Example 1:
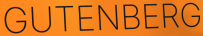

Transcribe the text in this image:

GUTENBERG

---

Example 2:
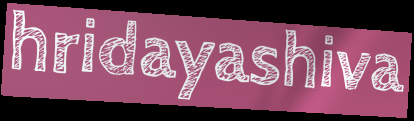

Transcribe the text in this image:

hridayashiva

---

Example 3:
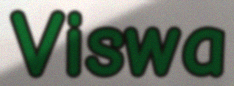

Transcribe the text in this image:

Viswa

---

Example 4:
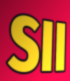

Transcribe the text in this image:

SII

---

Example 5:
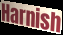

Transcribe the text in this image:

Harnish